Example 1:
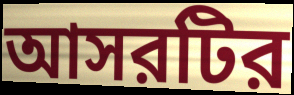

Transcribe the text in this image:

আসরটির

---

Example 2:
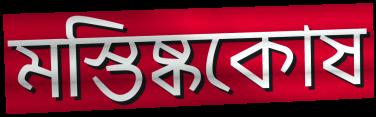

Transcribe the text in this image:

মস্তিষ্ককোষ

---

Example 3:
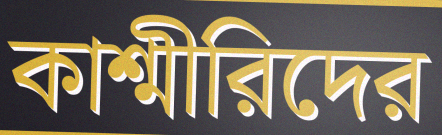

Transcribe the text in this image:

কাশ্মীরিদের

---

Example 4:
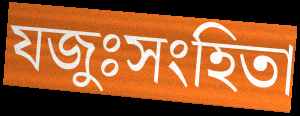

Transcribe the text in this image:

যজুঃসংহিতা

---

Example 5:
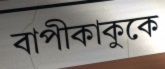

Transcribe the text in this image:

বাপীকাকুকে